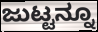
ಜುಟ್ಟನ್ನೂ